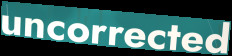
uncorrected